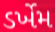
ડર્ખેમ